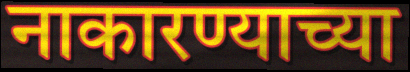
नाकारण्याच्या